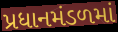
પ્રધાનમંડળમાં